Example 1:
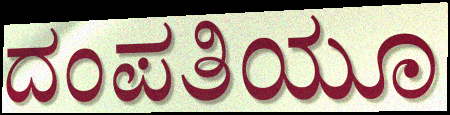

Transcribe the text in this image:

ದಂಪತಿಯೂ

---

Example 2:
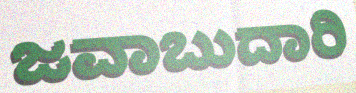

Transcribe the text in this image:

ಜವಾಬುದಾರಿ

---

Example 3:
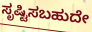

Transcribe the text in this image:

ಸೃಷ್ಟಿಸಬಹುದೇ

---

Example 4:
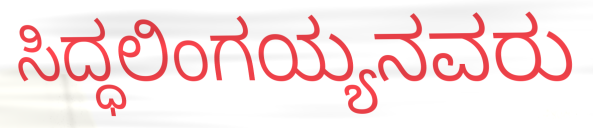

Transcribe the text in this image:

ಸಿದ್ಧಲಿಂಗಯ್ಯನವರು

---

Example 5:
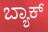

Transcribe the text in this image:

ಬ್ಯಾಕ್